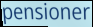
pensioner